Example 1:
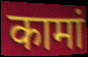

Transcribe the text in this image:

कामां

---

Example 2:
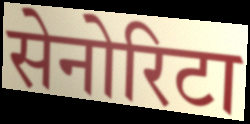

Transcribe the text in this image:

सेनोरिटा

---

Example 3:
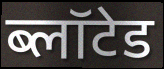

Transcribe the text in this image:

ब्लॉटेड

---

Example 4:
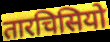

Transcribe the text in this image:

तारचिसियो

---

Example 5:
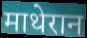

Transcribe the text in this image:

माथेरान